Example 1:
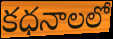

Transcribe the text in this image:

కధనాలలో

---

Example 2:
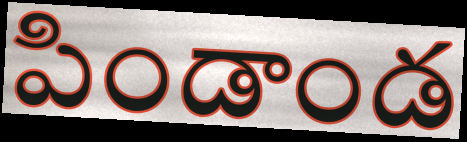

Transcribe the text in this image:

పిండాండ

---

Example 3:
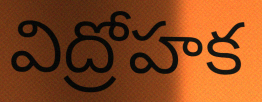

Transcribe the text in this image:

విద్రోహక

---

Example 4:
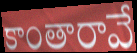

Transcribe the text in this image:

కాంతారావే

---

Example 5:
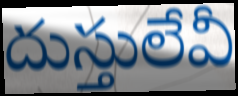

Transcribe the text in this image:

దుస్తులేవీ